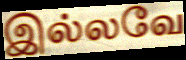
இல்லவே